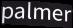
palmer